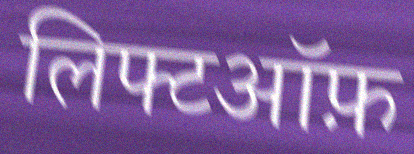
लिफ्टऑफ़